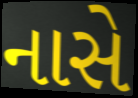
નાસે